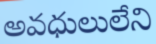
అవధులులేని